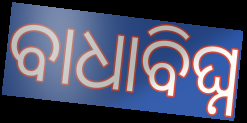
ବାଧାବିଘ୍ନ